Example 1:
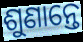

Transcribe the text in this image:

ଶୁଣାନ୍ତେ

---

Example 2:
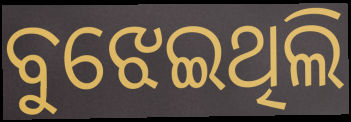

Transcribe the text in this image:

ବୁଝେଇଥିଲି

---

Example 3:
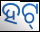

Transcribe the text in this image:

ହଟ୍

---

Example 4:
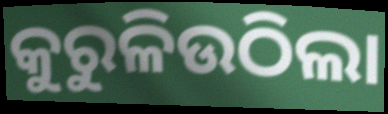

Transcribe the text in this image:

କୁରୁଳିଉଠିଲା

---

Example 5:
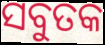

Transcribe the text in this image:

ସବୁତକ